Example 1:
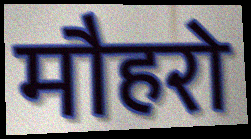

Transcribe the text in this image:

मौहरो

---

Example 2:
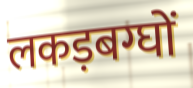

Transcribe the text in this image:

लकड़बग्घों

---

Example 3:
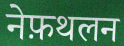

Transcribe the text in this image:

नेफ़थलन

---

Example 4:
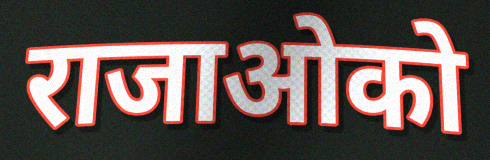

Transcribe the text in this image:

राजाओको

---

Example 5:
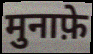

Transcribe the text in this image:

मुनाफ़े